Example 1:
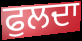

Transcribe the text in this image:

ਫੁਲਦਾ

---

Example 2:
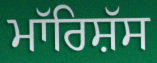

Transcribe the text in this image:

ਮਾੱਰਿਸ਼ੱਸ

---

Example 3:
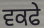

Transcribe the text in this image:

ਵਕਫੇ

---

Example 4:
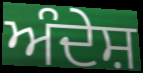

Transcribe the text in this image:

ਅੰਦੇਸ਼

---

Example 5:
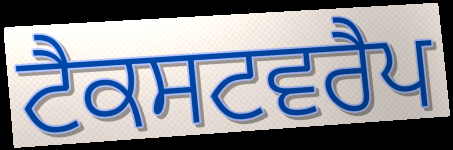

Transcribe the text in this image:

ਟੈਕਸਟਵਰੈਪ